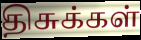
திசுக்கள்